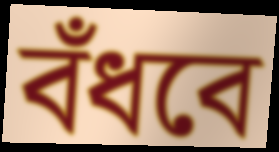
বঁধবে